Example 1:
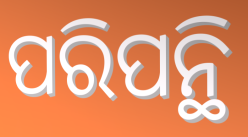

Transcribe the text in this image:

ପରିପନ୍ଥି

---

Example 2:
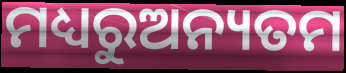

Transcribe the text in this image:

ମଧ୍ୟରୁଅନ୍ୟତମ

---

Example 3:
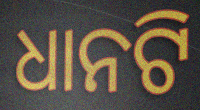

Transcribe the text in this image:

ଧାନଟି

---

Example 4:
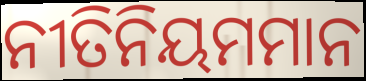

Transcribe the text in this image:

ନୀତିନିୟମମାନ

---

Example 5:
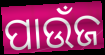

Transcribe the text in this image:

ପାଉଁଜ